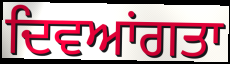
ਦਿਵਆਂਗਤਾ